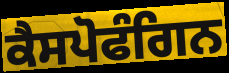
ਕੈਸਪੋਫੰਗਿਨ